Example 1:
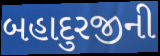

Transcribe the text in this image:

બહાદુરજીની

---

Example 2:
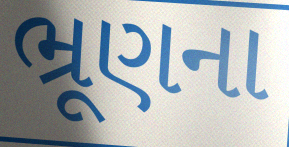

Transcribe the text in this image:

ભ્રૂણના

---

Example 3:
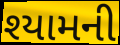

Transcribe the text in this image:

શ્યામની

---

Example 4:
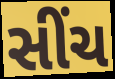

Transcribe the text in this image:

સીંચ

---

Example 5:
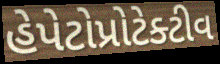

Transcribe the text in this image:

હેપેટોપ્રોટેક્ટીવ